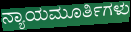
ನ್ಯಾಯಮೂರ್ತಿಗಳು